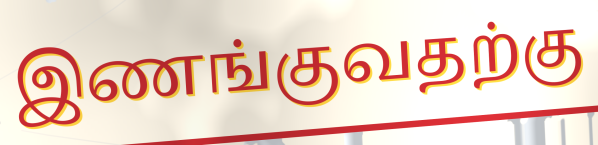
இணங்குவதற்கு